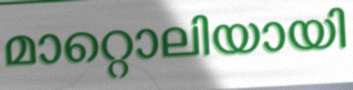
മാറ്റൊലിയായി